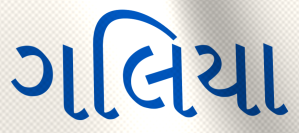
ગલિયા